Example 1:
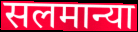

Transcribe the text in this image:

सलमान्या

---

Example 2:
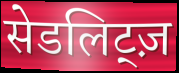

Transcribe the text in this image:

सेडलिट्ज़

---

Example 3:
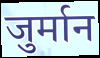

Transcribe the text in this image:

जुर्मान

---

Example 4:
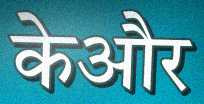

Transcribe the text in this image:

केऔर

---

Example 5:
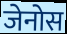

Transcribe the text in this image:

जेनोस